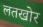
लतखोर